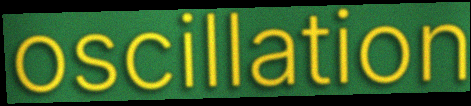
oscillation